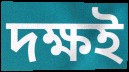
দক্ষই